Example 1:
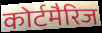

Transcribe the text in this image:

कोर्टमैरिज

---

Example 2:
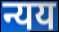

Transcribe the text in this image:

न्यय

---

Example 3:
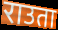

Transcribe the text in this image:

राउता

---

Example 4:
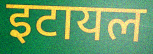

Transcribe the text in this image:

इटायल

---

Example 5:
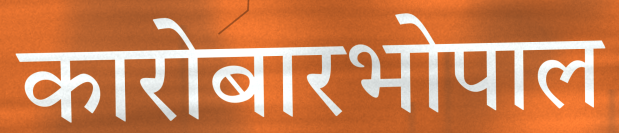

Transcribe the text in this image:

कारोबारभोपाल